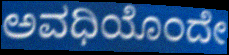
ಅವಧಿಯೊಂದೇ